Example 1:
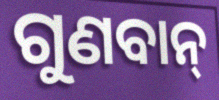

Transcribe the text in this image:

ଗୁଣବାନ୍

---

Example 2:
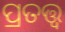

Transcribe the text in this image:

ପ୍ରତତ୍ତ୍ୱ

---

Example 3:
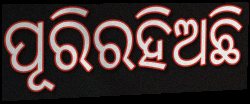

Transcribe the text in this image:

ପୂରିରହିଅଛି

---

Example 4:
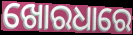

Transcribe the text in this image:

ଖୋରଧାରେ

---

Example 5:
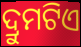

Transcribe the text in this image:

ଦ୍ରୁମଟିଏ